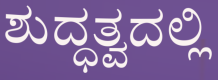
ಶುದ್ಧತ್ವದಲ್ಲಿ